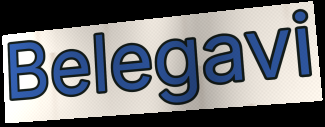
Belegavi